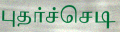
புதர்ச்செடி